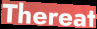
Thereat